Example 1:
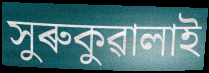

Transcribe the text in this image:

সুৰুকুৱালাই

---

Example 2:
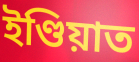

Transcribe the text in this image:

ইণ্ডিয়াত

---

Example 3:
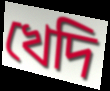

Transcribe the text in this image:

খেদি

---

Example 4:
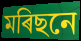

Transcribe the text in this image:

মৰিছনে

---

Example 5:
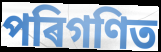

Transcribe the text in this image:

পৰিগণিত